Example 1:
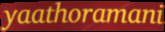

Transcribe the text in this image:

yaathoramani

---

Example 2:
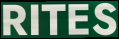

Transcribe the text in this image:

RITES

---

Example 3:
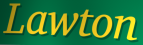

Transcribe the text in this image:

Lawton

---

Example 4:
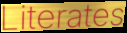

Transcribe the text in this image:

Literates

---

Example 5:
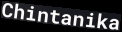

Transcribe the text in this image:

Chintanika